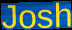
Josh